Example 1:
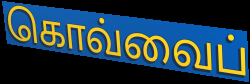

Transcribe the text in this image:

கொவ்வைப்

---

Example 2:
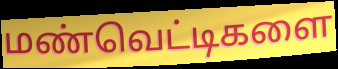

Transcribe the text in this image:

மண்வெட்டிகளை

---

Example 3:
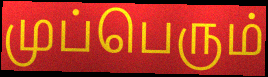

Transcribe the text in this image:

முப்பெரும்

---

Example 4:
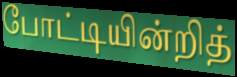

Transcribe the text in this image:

போட்டியின்றித்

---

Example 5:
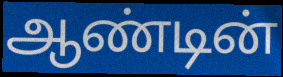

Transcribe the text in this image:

ஆண்டின்